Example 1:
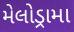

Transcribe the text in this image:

મેલોડ્રામા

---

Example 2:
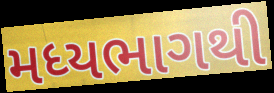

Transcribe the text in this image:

મધ્યભાગથી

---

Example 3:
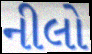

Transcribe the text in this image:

નીલો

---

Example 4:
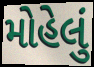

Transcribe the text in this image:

મોહેલું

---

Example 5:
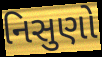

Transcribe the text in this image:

નિસુણો